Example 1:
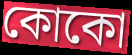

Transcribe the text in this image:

কোকো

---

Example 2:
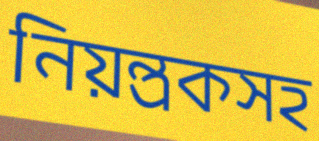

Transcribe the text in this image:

নিয়ন্ত্রকসহ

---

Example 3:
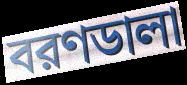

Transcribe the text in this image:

বরণডালা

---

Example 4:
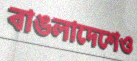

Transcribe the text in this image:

বাঙলাদেশেও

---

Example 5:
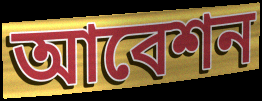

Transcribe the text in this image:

আবেশন